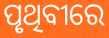
ପୃଥିବୀରେ